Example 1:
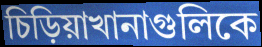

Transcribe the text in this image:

চিড়িয়াখানাগুলিকে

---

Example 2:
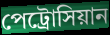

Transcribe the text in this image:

পেট্রোসিয়ান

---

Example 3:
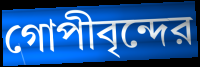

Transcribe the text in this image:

গোপীবৃন্দের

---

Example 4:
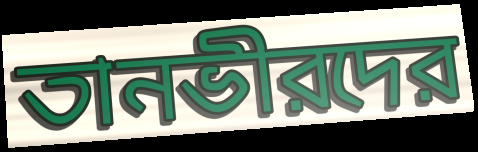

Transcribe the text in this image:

তানভীরদের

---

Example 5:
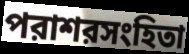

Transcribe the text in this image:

পরাশরসংহিতা